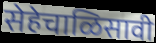
सेहेचाळिसावी